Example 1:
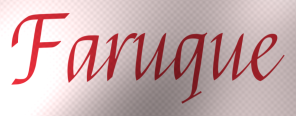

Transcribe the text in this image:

Faruque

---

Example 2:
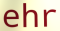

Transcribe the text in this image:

ehr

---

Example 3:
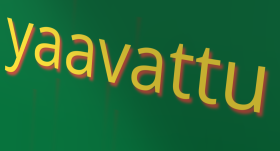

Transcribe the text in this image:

yaavattu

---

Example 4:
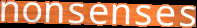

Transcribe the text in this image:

nonsenses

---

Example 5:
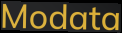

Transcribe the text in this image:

Modata